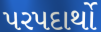
પરપદાર્થો